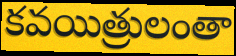
కవయిత్రులంతా